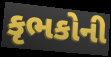
કૃભકોની